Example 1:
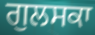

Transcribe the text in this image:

ਗੁਲਸਕਾ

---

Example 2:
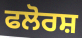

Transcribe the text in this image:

ਫਲੋਰਸ਼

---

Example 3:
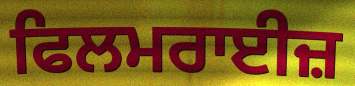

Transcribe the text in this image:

ਫਿਲਮਰਾਈਜ਼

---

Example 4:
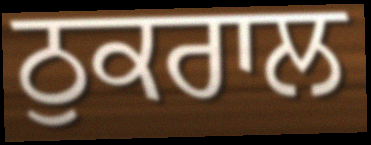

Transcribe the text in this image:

ਠੁਕਰਾਲ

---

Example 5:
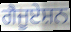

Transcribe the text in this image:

ਗੈਜੂਏਸ਼ਨ